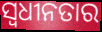
ସ୍ବଧୀନତାର